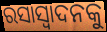
ରସାସ୍ୱାଦନକୁ